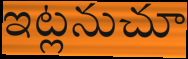
ఇట్లనుచూ